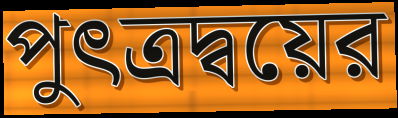
পুৎত্রদ্বয়ের